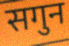
सगुन